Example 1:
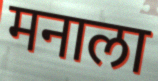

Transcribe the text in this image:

मनाला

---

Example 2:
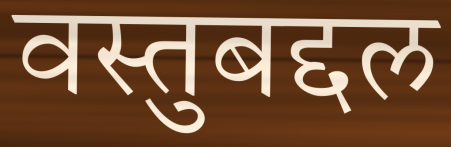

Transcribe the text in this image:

वस्तुबद्दल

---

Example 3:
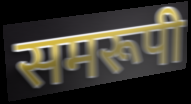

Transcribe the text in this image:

समरूपी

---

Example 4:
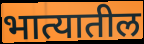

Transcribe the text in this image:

भात्यातील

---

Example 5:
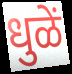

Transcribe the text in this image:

धुळें